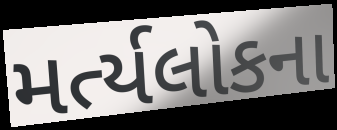
મર્ત્યલોકના